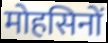
मोहसिनों